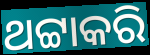
ଥଟ୍ଟାକରି